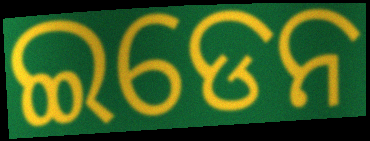
ଇଡେନ